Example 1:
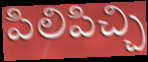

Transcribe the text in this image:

పిలిపిచ్చి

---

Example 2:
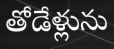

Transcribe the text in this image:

తోడేళ్లును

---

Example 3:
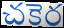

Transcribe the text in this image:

చకెర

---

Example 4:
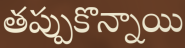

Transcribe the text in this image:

తప్పుకొన్నాయి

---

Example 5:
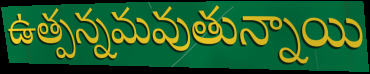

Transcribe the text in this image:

ఉత్పన్నమవుతున్నాయి